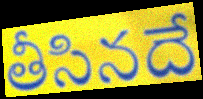
తీసినదే